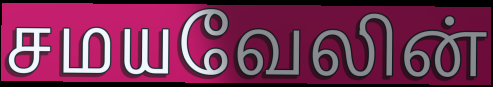
சமயவேலின்